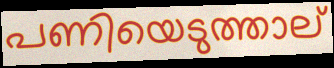
പണിയെടുത്താല്